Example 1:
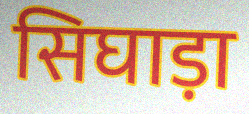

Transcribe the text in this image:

सिघाड़ा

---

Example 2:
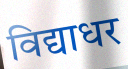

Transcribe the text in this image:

विद्याधर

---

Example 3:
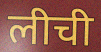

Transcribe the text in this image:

लीची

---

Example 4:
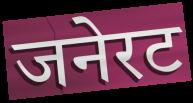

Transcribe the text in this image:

जनेरट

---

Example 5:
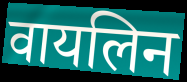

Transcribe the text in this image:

वायलिन